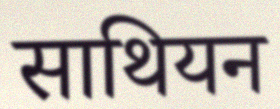
साथियन